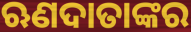
ଋଣଦାତାଙ୍କର